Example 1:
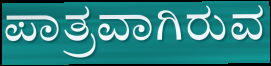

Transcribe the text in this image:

ಪಾತ್ರವಾಗಿರುವ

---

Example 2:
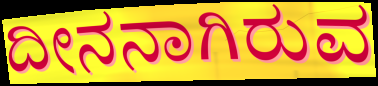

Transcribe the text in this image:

ದೀನನಾಗಿರುವ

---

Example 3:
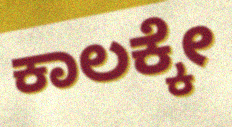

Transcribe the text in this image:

ಕಾಲಕ್ಕೇ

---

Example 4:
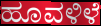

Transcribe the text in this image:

ಹೂವಳಿಳೆ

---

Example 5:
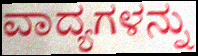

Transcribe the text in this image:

ವಾದ್ಯಗಳನ್ನು